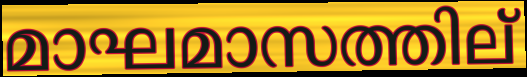
മാഘമാസത്തില്